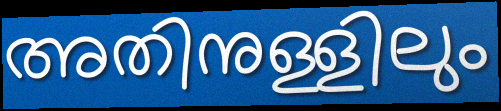
അതിനുള്ളിലും